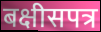
बक्षीसपत्र